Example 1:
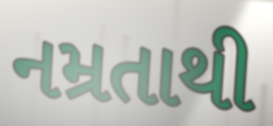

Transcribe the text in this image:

નમ્રતાથી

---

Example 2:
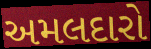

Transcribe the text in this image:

અમલદારો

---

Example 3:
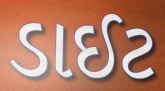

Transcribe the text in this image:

ડાઈટ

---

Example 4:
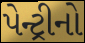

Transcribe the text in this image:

પેન્ટ્રીનો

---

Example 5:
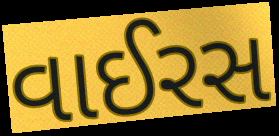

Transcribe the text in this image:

વાઈરસ